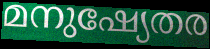
മനുഷ്യേതര